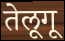
तेलूगू